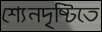
শ্যেনদৃষ্টিতে